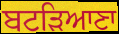
ਬਟੜਿਆਣਾ